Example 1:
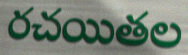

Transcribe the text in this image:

రచయితల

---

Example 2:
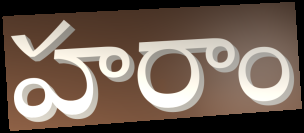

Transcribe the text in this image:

హరాం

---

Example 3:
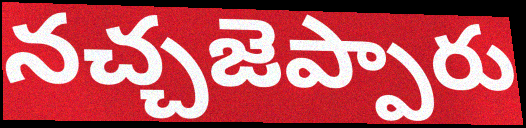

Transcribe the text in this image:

నచ్చజెప్పారు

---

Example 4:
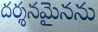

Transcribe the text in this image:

దర్శనమైనను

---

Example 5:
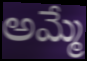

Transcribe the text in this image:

అమ్మే